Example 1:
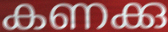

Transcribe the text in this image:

കണക്കു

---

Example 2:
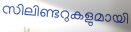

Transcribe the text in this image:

സിലിണ്ടറുകളുമായി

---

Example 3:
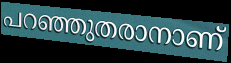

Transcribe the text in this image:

പറഞ്ഞുതരാനാണ്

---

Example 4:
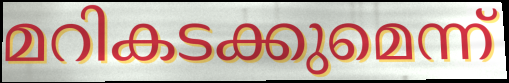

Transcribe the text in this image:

മറികടക്കുമെന്ന്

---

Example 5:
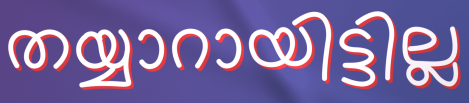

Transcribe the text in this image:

തയ്യാറായിട്ടില്ല